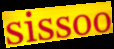
sissoo